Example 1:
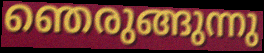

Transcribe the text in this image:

ഞെരുങ്ങുന്നു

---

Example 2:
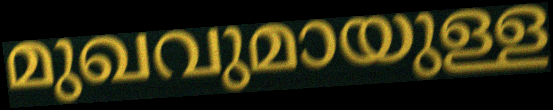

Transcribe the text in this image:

മുഖവുമായുള്ള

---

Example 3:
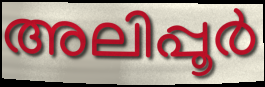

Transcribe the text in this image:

അലിപ്പൂർ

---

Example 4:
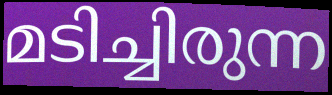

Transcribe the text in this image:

മടിച്ചിരുന്ന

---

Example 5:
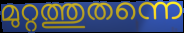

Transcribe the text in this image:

മുറ്റത്തുതന്നെ